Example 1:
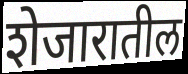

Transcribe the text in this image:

शेजारातील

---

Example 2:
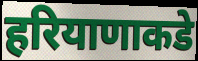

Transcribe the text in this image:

हरियाणाकडे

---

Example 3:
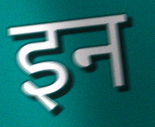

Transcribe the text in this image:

इन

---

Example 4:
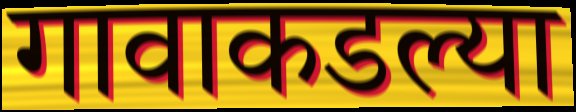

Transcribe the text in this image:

गावाकडल्या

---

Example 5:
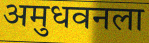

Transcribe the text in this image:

अमुधवनला